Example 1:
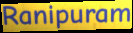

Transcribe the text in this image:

Ranipuram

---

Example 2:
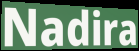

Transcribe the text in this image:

Nadira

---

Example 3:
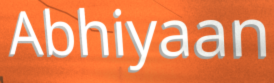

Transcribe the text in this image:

Abhiyaan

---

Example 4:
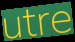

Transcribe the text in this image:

utre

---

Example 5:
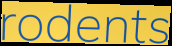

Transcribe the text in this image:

rodents